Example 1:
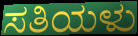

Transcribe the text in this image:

ಸತಿಯಳು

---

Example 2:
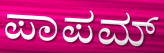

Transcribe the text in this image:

ಪಾಪಮ್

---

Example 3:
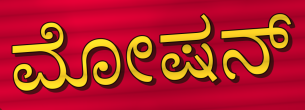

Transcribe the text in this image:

ಮೋಷನ್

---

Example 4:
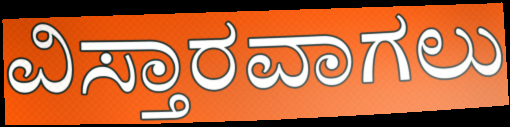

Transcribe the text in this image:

ವಿಸ್ತಾರವಾಗಲು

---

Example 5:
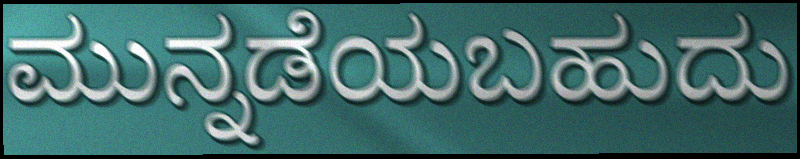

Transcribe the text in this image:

ಮುನ್ನಡೆಯಬಹುದು